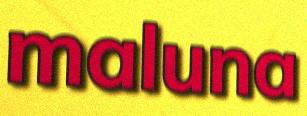
maluna